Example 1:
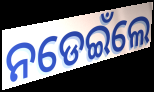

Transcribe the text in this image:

ନଡେଇଁଲେ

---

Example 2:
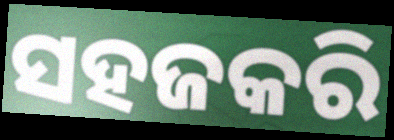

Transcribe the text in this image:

ସହଜକରି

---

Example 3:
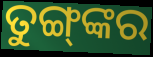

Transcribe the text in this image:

ତୁଙ୍ଗ୍‍ଙ୍କର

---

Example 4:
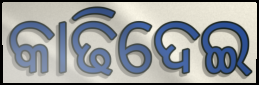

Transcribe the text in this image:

କାଢିଦେଇ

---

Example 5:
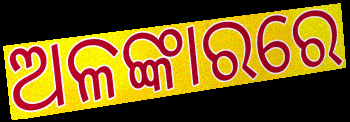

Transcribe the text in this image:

ଅଳଙ୍କାରରେ